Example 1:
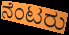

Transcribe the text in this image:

ನೆಂಟರು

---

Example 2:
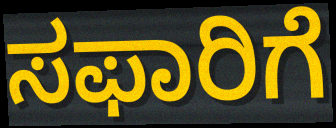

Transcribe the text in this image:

ಸಫಾರಿಗೆ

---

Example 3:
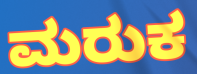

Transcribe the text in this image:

ಮರುಕ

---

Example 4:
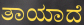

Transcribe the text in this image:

ತಾಯಾದೆ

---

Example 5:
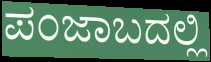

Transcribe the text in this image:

ಪಂಜಾಬದಲ್ಲಿ